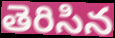
తెరిసిన